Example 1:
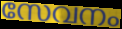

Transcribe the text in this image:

സേവനം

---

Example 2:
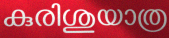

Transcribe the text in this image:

കുരിശുയാത്ര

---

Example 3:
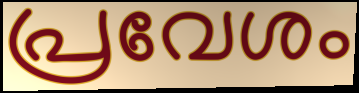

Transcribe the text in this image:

പ്രവേശം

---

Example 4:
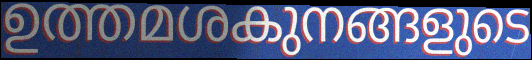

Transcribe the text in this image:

ഉത്തമശകുനങ്ങളുടെ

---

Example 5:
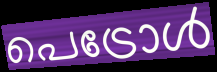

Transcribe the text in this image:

പെട്രോൾ